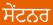
ਸੇਂਟਨਰ